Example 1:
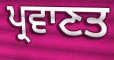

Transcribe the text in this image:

ਪ੍ਰਵਾਣਤ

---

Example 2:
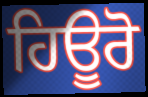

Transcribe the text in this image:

ਹਿਊਰੋ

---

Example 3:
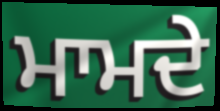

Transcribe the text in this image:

ਮਾਮਦੇ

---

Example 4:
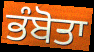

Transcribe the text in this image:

ਭੰਬੋਤਾ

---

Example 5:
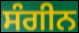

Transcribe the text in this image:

ਸੰਗੀਨ